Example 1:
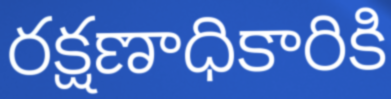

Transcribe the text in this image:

రక్షణాధికారికి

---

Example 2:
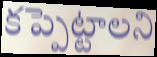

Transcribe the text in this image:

కప్పెట్టాలని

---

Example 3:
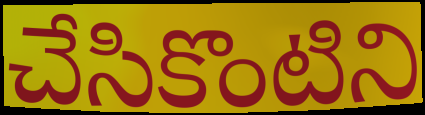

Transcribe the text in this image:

చేసికొంటిని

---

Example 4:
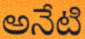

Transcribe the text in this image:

అనేటి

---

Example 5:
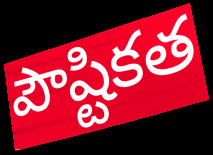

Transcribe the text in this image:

పౌష్టికత